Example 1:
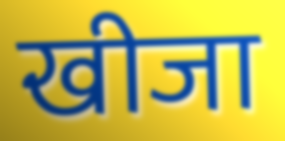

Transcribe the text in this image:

खीजा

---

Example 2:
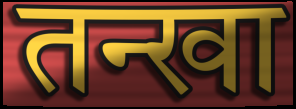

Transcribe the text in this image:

तन्खा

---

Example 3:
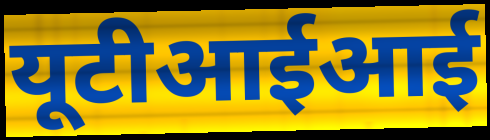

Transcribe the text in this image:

यूटीआईआई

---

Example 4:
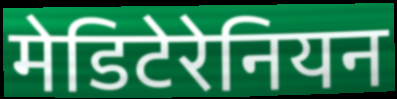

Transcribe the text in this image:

मेडिटेरेनियन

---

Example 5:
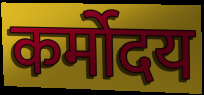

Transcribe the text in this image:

कर्मोदय